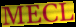
MECL